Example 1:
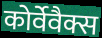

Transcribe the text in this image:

कोर्वेवैक्स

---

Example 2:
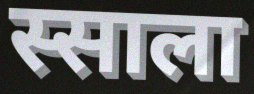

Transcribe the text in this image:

स्साला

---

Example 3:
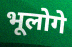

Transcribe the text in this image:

भूलोगे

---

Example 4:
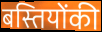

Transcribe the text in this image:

बस्तियोंकी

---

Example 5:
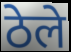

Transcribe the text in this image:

ठेले